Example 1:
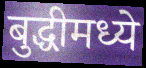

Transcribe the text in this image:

बुद्धीमध्ये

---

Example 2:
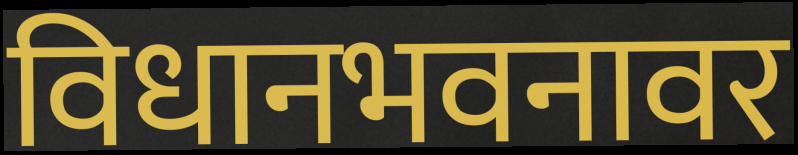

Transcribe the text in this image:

विधानभवनावर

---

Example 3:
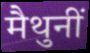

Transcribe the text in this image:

मैथुनीं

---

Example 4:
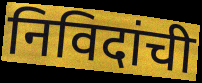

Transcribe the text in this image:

निविदांची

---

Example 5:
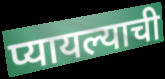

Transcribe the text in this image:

प्यायल्याची